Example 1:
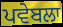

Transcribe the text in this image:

ਪਵੇਬਲਾ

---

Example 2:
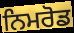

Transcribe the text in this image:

ਨਿਮਰੋਡ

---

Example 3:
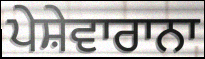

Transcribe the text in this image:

ਪੇਸ਼ੇਵਾਰਾਨਾ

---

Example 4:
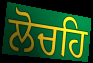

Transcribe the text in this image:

ਲੋਚਹਿ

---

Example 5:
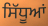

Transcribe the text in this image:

ਸਿੱਧੂਆਂ